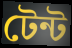
টেন্ট